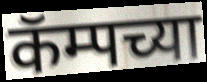
कॅम्पच्या